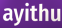
ayithu